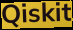
Qiskit